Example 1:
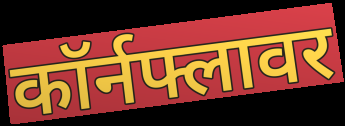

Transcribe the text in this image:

कॉर्नफ्लावर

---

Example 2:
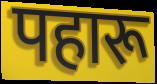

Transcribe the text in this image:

पहारू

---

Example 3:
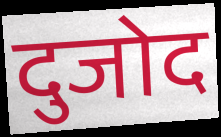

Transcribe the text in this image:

दुजोद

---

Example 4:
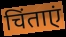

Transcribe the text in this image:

चिंताएं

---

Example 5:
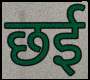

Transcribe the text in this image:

छई